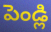
పెండ్లి